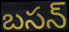
బసన్